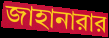
জাহানারার